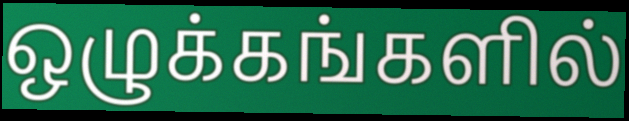
ஒழுக்கங்களில்